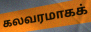
கலவரமாகக்